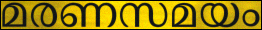
മരണസമയം